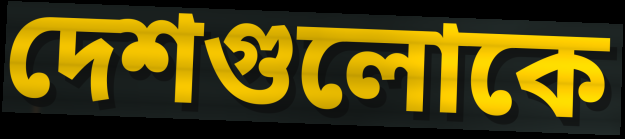
দেশগুলোকে